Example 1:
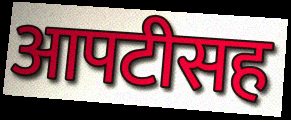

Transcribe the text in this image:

आपटीसह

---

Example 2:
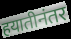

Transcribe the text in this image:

हयातीनंतर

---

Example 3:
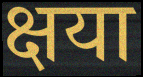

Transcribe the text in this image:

क्षया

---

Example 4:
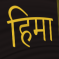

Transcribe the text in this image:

हिमा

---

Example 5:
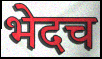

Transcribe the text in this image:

भेदच